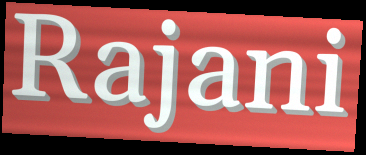
Rajani